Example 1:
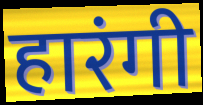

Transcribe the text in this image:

हारंगी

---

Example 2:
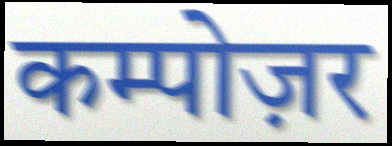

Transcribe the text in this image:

कम्पोज़र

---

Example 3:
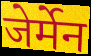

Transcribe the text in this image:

जेर्मेन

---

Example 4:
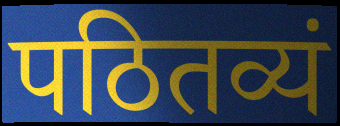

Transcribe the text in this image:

पठितव्यं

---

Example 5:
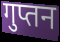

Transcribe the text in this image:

गुप्तन